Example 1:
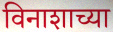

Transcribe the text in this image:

विनाशाच्या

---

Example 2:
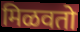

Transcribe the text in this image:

मिळवतो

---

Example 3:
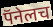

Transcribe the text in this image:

पॅनेलच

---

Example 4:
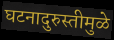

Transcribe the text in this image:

घटनादुरुस्तीमुळे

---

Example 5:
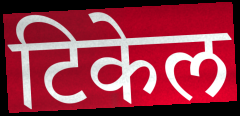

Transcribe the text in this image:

टिकेल